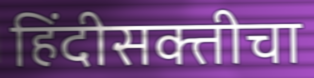
हिंदीसक्तीचा